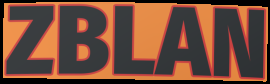
ZBLAN